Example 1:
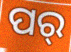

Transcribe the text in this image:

ପର୍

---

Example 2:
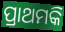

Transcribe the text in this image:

ପ୍ରାଥମକି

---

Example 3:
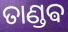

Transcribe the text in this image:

ତାଣ୍ଡଵ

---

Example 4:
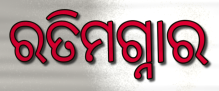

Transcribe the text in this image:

ରତିମଗ୍ନାର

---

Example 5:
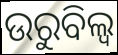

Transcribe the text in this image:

ଉରୁବିଲ୍ୱ